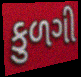
કુળગી